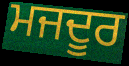
ਮਜਦੂਰ